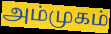
அம்முகம்